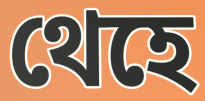
থেহে